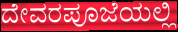
ದೇವರಪೂಜೆಯಲ್ಲಿ